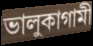
ভালুকাগামী